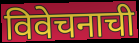
विवेचनाची